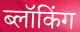
ब्लॉकिंग